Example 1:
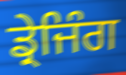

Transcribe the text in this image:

ਡ੍ਰੇਜਿੰਗ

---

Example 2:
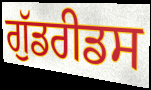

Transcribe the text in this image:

ਗੁੱਡਰੀਡਸ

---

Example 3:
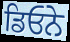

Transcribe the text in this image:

ਡਿਓਨੇ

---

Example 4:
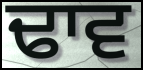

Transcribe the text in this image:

ਢਾਵ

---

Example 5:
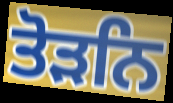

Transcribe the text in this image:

ਤੋੜਨਿ